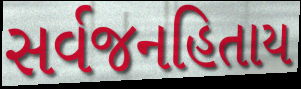
સર્વજનહિતાય